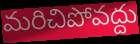
మరిచిపోవద్దు